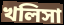
খলিসা